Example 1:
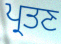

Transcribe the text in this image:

ਪ੍ਰਤਣ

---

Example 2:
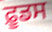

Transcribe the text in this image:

ਫ਼ੂਡਸ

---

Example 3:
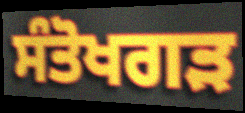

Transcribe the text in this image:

ਸੰਤੋਖਗੜ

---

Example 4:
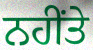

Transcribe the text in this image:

ਨਹੀਂਤੇ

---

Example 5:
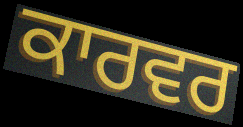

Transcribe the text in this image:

ਕਾਰਵਰ